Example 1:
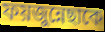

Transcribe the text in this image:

ফয়জুন্নেছাকে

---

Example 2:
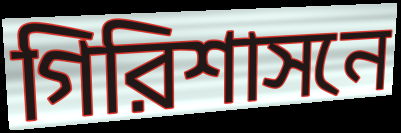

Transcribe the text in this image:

গিরিশাসনে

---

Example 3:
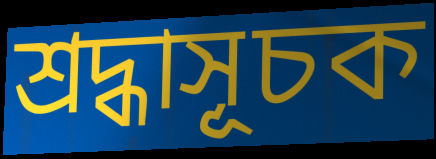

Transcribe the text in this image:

শ্রদ্ধাসূচক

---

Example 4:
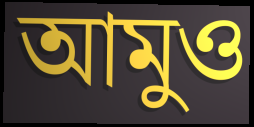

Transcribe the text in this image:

আমুও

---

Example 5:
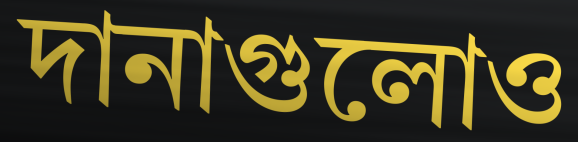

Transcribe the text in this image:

দানাগুলোও